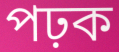
পঢ়ক